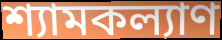
শ্যামকল্যাণ